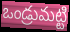
ఒండ్రుమట్టి